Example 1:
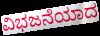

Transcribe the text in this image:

ವಿಭಜನೆಯಾದ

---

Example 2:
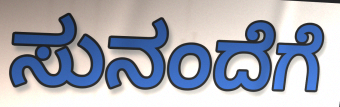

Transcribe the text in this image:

ಸುನಂದೆಗೆ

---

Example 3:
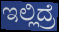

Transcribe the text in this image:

ಇಲ್ಲಿದ್ರೆ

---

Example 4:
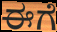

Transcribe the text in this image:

ಈಗೆ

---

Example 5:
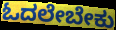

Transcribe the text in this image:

ಓದಲೇಬೇಕು